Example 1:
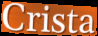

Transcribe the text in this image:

Crista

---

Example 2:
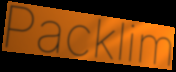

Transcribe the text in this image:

Packlim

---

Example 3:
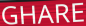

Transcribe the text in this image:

GHARE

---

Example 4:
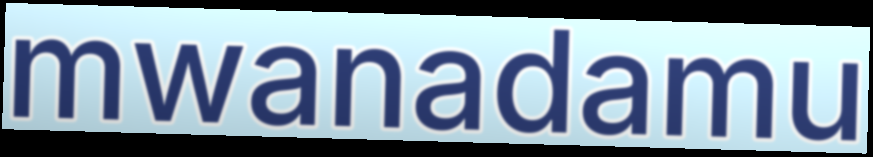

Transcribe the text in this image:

mwanadamu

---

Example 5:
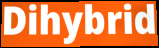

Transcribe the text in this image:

Dihybrid